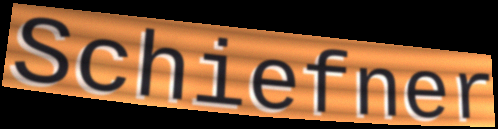
Schiefner